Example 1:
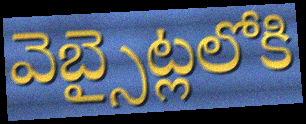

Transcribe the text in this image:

వెబ్సైట్లలోకి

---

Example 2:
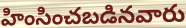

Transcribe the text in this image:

హింసించబడినవారు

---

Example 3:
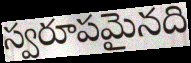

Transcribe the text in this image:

స్వరూపమైనది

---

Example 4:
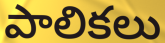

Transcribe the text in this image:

పాలికలు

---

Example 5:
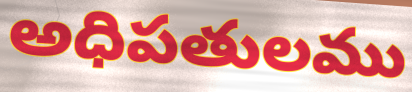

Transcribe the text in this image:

అధిపతులము